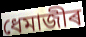
ধেমাজীৰ